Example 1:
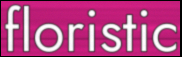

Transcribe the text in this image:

floristic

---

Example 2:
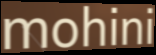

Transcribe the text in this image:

mohini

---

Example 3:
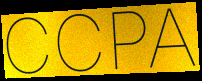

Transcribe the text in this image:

CCPA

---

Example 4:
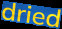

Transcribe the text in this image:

dried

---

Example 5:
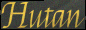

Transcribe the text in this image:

Hutan